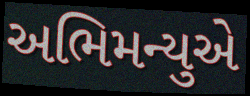
અભિમન્યુએ